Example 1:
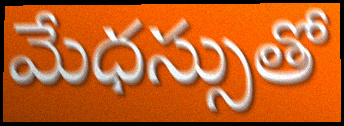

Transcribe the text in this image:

మేధస్సుతో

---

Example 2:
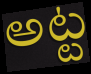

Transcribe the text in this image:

అట్ట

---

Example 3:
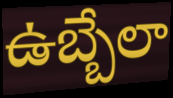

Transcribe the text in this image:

ఉబ్బేలా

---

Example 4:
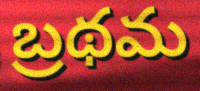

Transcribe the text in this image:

బ్రథమ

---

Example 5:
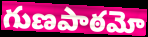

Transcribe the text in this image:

గుణపాఠమో